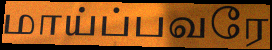
மாய்ப்பவரே